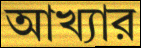
আখ্যার